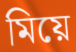
মিয়ে